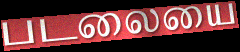
படலையை